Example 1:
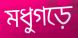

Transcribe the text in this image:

মধুগড়ে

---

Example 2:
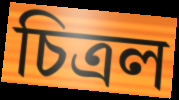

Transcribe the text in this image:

চিত্রল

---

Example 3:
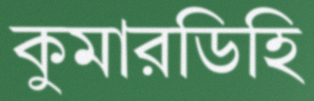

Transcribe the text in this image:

কুমারডিহি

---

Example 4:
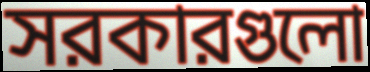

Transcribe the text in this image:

সরকারগুলো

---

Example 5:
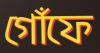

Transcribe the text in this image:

গোঁফে